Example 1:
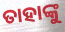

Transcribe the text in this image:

ତାହାଙ୍କୁ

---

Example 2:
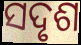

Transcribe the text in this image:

ସଦୃଶ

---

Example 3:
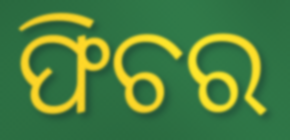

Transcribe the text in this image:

ଫିଚର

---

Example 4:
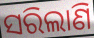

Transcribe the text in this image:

ସରିଲାଣି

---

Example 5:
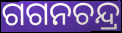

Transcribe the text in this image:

ଗଗନଚନ୍ଦ୍ର